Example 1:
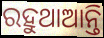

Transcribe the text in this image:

ରହୁଥାଆନ୍ତି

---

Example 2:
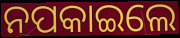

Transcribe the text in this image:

ନପକାଇଲେ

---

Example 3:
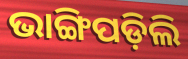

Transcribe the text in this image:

ଭାଙ୍ଗିପଡ଼ିଲି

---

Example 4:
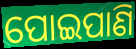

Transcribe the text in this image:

ପୋଇପାଣି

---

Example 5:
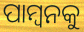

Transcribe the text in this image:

ପାମ୍ବନକୁ